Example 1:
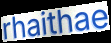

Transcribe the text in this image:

rhaithae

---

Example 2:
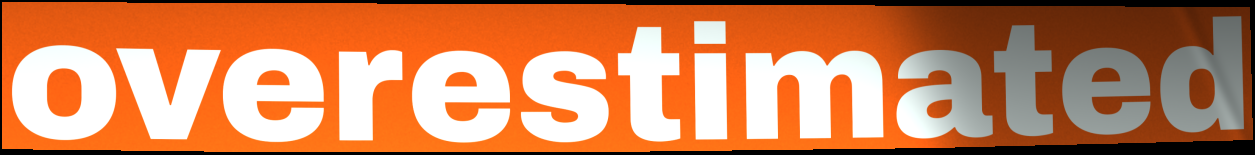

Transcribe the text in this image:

overestimated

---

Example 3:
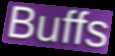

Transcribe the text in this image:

Buffs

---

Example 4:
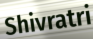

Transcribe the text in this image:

Shivratri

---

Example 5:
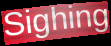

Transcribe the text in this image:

Sighing